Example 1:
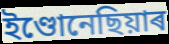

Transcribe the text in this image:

ইণ্ডোনেছিয়াৰ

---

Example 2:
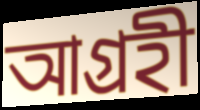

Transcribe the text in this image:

আগ্ৰহী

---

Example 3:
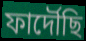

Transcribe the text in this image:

ফাৰ্দৌছি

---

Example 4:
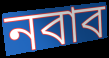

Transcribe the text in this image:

নবাব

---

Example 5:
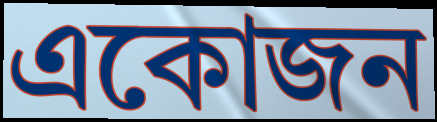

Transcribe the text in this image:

একোজন